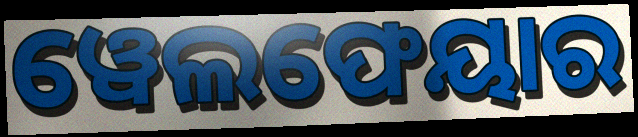
ୱେଲଫେୟାର